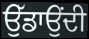
ਉੱਡਾਉਂਦੀ